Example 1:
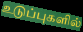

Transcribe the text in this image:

உடுப்புகளில்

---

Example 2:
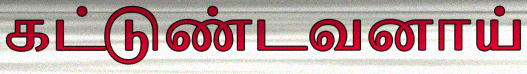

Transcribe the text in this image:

கட்டுண்டவனாய்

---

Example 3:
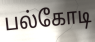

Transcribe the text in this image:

பல்கோடி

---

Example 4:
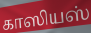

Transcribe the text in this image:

காஸியஸ்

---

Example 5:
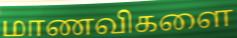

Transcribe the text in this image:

மாணவிகளை